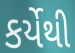
કર્યેથી